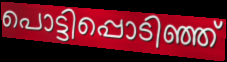
പൊട്ടിപ്പൊടിഞ്ഞ്